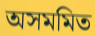
অসমমিত